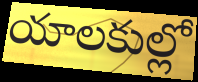
యాలకుల్లో